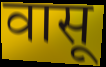
वासू